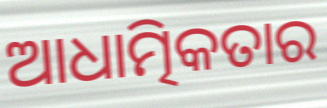
ଆଧାତ୍ମିକତାର